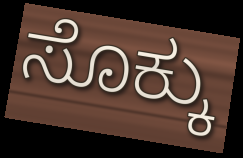
ಸೊಕ್ಕು